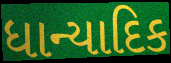
ધાન્યાદિક